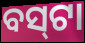
ବସ୍‍ଟା